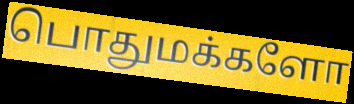
பொதுமக்களோ